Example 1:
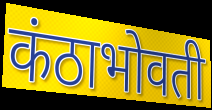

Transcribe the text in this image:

कंठाभोवती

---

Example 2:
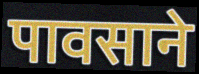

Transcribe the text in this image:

पावसाने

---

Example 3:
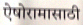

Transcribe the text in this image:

ऐषोरामासाठी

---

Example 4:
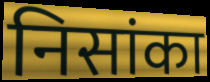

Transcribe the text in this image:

निसांका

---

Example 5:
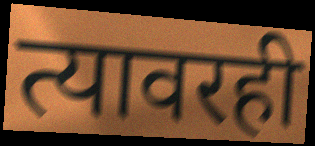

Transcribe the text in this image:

त्यावरही